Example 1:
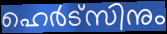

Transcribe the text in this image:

ഹെർട്സിനും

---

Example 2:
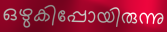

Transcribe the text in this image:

ഒഴുകിപ്പോയിരുന്നു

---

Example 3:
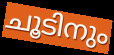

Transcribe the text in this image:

ചൂടിനും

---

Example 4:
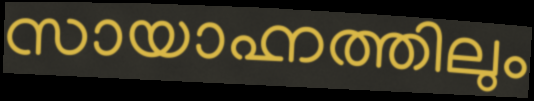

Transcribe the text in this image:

സായാഹ്നത്തിലും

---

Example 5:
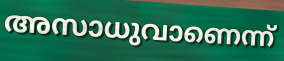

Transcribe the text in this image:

അസാധുവാണെന്ന്